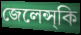
জেলেন্স্কি